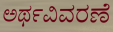
ಅರ್ಥವಿವರಣೆ